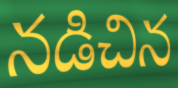
నడిచిన